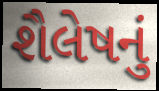
શૈલેષનું